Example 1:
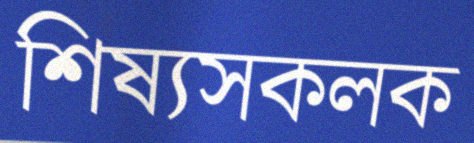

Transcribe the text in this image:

শিষ্যসকলক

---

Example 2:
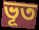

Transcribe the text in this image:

ভূত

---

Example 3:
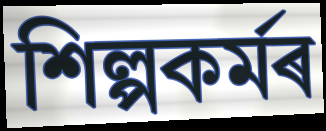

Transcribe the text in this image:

শিল্পকৰ্মৰ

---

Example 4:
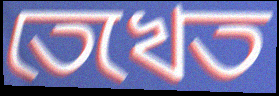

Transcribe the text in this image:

তেখেত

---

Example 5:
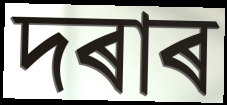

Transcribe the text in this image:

দৰাৰ